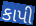
કાપી